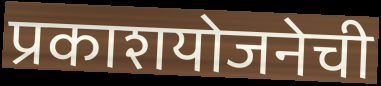
प्रकाशयोजनेची